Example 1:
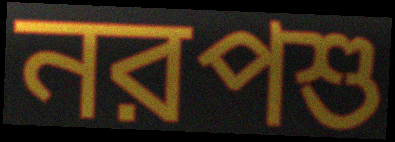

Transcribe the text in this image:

নরপশু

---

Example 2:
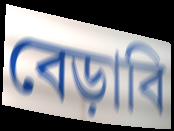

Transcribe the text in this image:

বেড়াবি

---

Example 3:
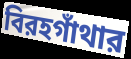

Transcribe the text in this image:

বিরহগাঁথার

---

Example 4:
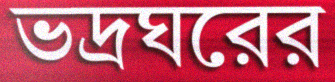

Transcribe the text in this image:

ভদ্রঘরের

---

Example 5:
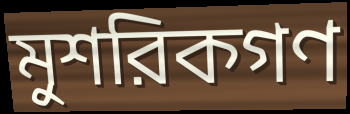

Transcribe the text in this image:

মুশরিকগণ